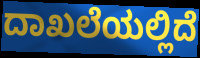
ದಾಖಲೆಯಲ್ಲಿದೆ